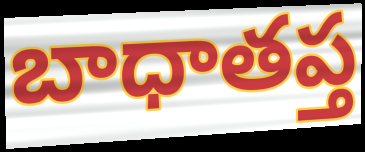
బాధాతప్త